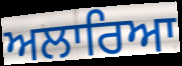
ਅਲਾਰਿਆ